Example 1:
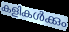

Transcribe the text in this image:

കളികൾക്കും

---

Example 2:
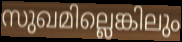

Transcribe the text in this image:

സുഖമില്ലെങ്കിലും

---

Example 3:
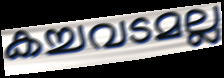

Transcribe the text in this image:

കച്ചവടമല്ല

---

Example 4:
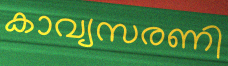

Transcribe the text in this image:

കാവ്യസരണി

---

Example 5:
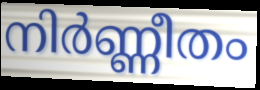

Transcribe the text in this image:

നിർണ്ണീതം